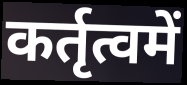
कर्तृत्वमें